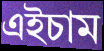
এইচাম